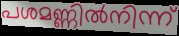
പശമണ്ണിൽനിന്ന്